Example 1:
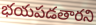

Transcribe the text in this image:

భయపడతారని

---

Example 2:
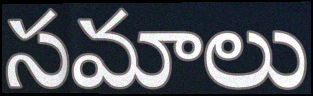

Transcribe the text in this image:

సమాలు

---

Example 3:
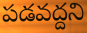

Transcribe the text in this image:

పడవద్దని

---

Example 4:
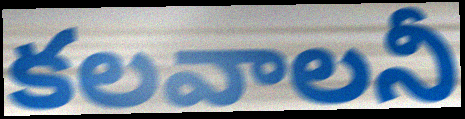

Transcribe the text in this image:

కలవాలనీ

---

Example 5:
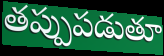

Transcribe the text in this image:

తప్పుపడుతూ